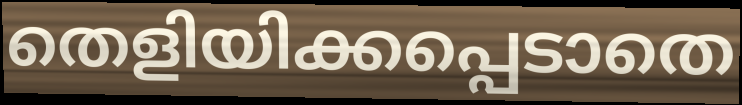
തെളിയിക്കപ്പെടാതെ